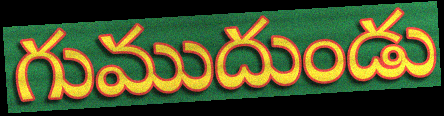
గుముదుండు